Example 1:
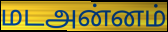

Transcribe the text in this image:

மடஅன்னம்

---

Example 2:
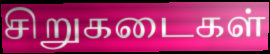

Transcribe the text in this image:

சிறுகடைகள்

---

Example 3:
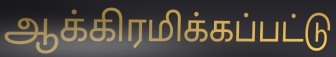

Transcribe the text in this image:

ஆக்கிரமிக்கப்பட்டு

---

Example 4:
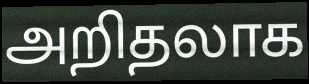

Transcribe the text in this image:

அறிதலாக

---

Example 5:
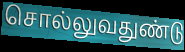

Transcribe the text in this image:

சொல்லுவதுண்டு